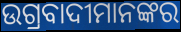
ଉଗ୍ରବାଦୀମାନଙ୍କର